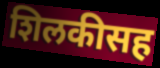
शिलकीसह